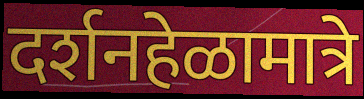
दर्शनहेळामात्रे